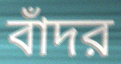
বাঁদর